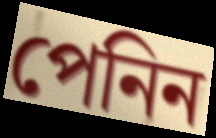
পেনিন